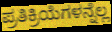
ಪ್ರತಿಕ್ರಿಯೆಗಳನ್ನೆಲ್ಲ